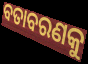
ବତାବରଣକୁ